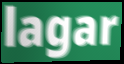
lagar